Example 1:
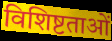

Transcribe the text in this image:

विशिष्टताओं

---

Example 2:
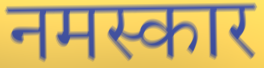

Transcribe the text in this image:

नमस्कार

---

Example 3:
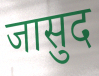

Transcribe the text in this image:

जासुद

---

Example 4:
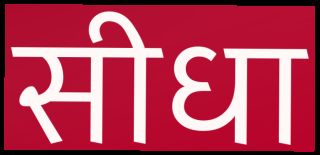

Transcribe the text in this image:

सीधा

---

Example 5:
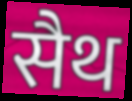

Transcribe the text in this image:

सैथ